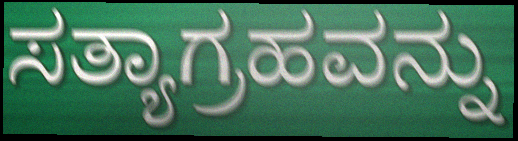
ಸತ್ಯಾಗ್ರಹವನ್ನು